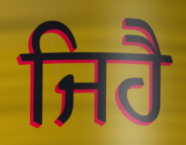
ਜਿਹੈ